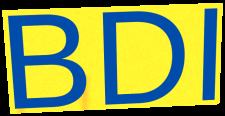
BDI